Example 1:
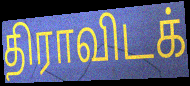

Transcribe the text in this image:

திராவிடக்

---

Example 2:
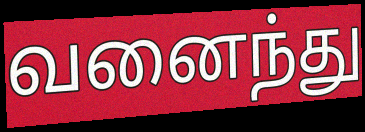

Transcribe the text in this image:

வனைந்து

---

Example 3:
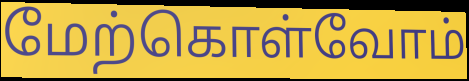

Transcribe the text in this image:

மேற்கொள்வோம்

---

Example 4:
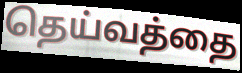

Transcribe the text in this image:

தெய்வத்தை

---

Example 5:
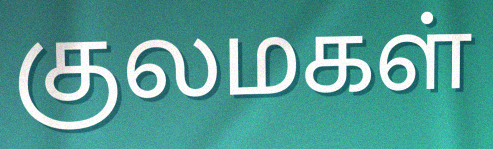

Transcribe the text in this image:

குலமகள்